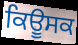
ਕਿਊਸਕ